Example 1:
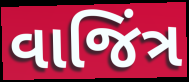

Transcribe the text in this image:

વાજિંત્ર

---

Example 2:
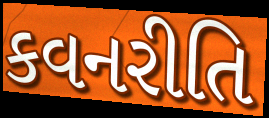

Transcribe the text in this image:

કવનરીતિ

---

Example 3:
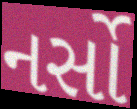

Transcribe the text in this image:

નર્સો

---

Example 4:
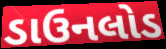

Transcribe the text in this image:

ડાઉનલોડ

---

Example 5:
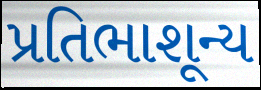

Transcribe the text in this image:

પ્રતિભાશૂન્ય